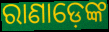
ରାଣାଡ଼େଙ୍କ